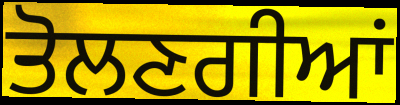
ਤੋਲਣਗੀਆਂ